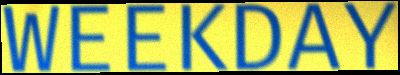
WEEKDAY